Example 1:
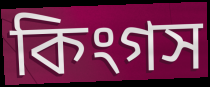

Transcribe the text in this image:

কিংগস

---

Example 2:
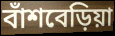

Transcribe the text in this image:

বাঁশবেড়িয়া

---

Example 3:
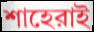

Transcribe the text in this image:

শাহেরাই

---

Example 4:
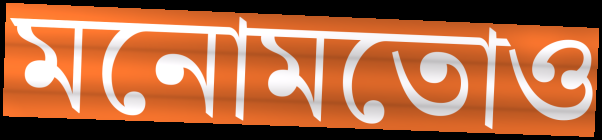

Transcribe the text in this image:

মনোমতোও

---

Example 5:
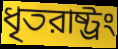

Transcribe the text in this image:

ধৃতরাষ্ট্রং